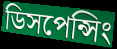
ডিসপেন্সিং